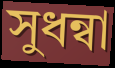
সুধন্বা